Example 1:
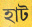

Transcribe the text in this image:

হাট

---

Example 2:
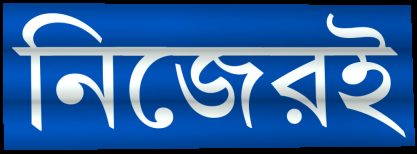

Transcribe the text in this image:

নিজেরই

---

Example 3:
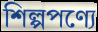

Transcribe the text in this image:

শিল্পপণ্যে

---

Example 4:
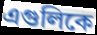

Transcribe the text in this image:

এগুলিকে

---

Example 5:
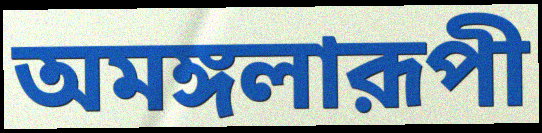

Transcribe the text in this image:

অমঙ্গলারূপী